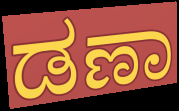
ಡಣಾ